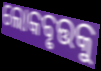
ଲୋକବୃତ୍ତକୁ